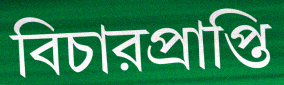
বিচারপ্রাপ্তি